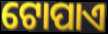
ଟୋପାଏ